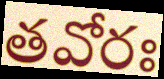
తవోరః